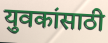
युवकांसाठी